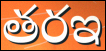
తరఇ